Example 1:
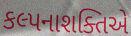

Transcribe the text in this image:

કલ્પનાશક્તિએ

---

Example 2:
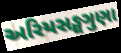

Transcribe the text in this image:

અરિયસઙ્ઘગુણા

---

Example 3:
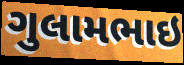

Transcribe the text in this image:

ગુલામભાઇ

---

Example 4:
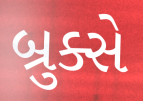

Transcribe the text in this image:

બ્રુક્સે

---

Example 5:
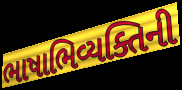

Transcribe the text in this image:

ભાષાભિવ્યક્તિની